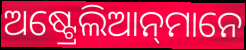
ଅଷ୍ଟ୍ରେଲିଆନ୍‌ମାନେ